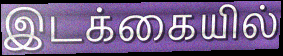
இடக்கையில்